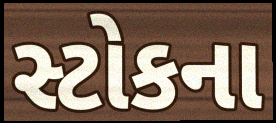
સ્ટોકના